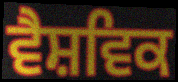
ਵੈਸ਼ਵਿਕ